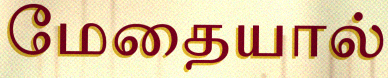
மேதையால்